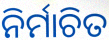
ନିର୍ମାଚିତ